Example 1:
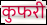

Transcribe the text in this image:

कुफरी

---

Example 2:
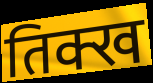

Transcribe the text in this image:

तिक्ख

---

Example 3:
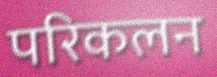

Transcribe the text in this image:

परिकलन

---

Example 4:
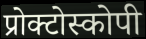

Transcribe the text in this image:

प्रोक्टोस्कोपी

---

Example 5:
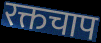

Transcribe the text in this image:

रक्तचाप